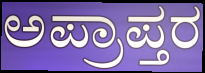
ಅಪ್ರಾಪ್ತರ